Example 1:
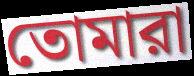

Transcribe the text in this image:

তোমারা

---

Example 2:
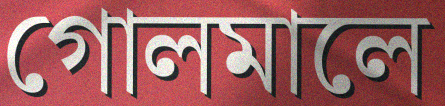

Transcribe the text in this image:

গোলমালে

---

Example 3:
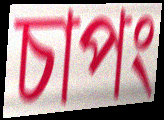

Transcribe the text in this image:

চাপং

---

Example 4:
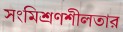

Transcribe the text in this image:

সংমিশ্রণশীলতার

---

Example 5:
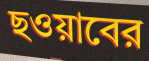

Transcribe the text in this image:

ছওয়াবের